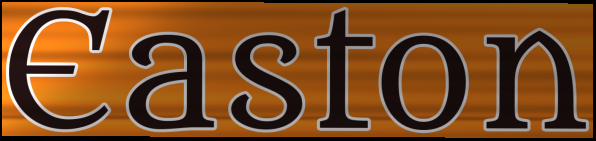
Easton